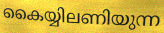
കൈയ്യിലണിയുന്ന